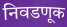
निवडणूक